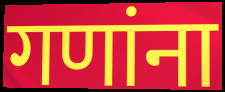
गणांना